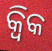
କ୍ୱିକ